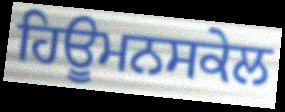
ਹਿਊਮਨਸਕੇਲ